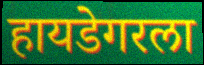
हायडेगरला